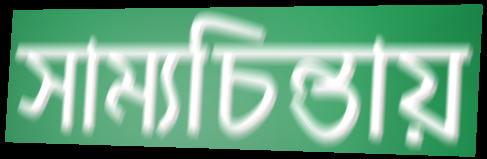
সাম্যচিন্তায়